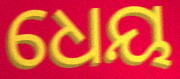
ଧେୟ